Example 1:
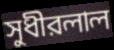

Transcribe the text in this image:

সুধীরলাল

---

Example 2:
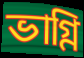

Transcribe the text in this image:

ভাগ্নি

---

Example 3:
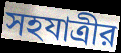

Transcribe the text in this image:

সহযাত্রীর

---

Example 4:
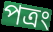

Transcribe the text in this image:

পত্রং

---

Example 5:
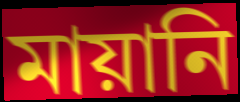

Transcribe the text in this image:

মায়ানি